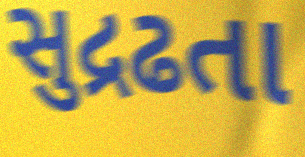
સુદ્રઢતા